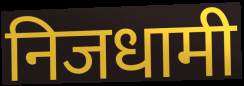
निजधामी